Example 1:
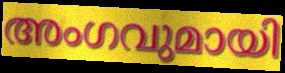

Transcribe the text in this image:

അംഗവുമായി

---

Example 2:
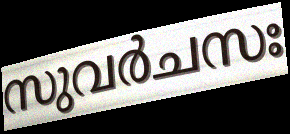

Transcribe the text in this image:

സുവർചസഃ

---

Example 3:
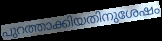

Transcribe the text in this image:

പുറത്താക്കിയതിനുശേഷം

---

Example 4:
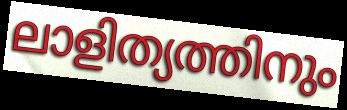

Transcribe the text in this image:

ലാളിത്യത്തിനും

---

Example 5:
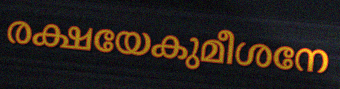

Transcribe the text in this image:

രക്ഷയേകുമീശനേ